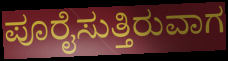
ಪೂರೈಸುತ್ತಿರುವಾಗ